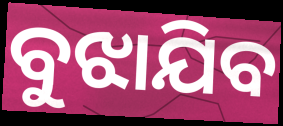
ବୁଝାଯିବ